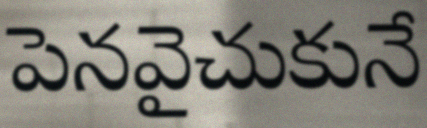
పెనవైచుకునే